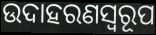
ଉଦାହରଣସ୍ୱରୂପ